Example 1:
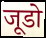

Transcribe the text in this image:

जूडो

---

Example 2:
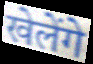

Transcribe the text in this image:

खेलेंगे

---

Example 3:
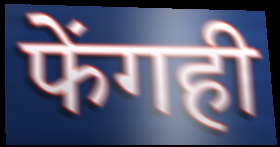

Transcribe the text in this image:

फेंगही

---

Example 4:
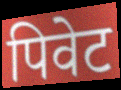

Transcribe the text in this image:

पिवेट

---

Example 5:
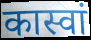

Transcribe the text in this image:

कास्वां